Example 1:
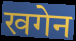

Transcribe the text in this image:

खगेन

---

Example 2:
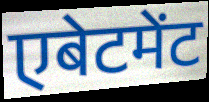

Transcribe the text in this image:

एबेटमेंट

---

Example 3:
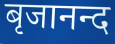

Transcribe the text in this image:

बृजानन्द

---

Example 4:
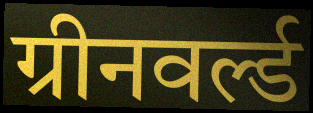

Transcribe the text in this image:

ग्रीनवर्ल्ड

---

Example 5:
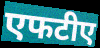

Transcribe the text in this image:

एफटीए